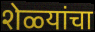
शेळ्यांचा